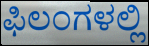
ಫಿಲಂಗಳಲ್ಲಿ